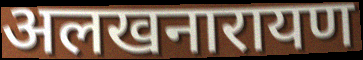
अलखनारायण